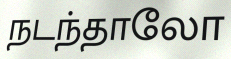
நடந்தாலோ